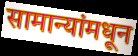
सामान्यांमधून